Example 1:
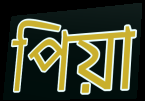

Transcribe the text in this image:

পিয়া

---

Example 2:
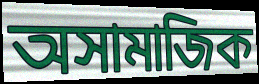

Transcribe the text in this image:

অসামাজিক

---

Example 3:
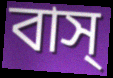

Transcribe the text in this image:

বাস্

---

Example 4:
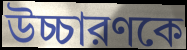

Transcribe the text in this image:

উচ্চারণকে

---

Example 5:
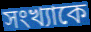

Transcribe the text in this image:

সংখ্যাকে